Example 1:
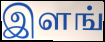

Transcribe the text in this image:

இளங்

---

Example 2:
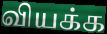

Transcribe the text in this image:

வியக்க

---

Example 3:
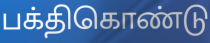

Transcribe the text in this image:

பக்திகொண்டு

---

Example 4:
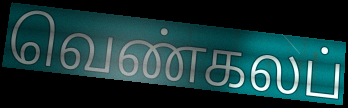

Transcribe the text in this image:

வெண்கலப்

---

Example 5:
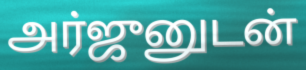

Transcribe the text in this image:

அர்ஜுனுடன்